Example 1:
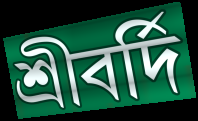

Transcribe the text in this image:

শ্রীবর্দি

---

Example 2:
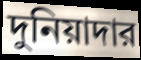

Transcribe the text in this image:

দুনিয়াদার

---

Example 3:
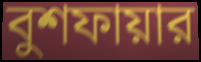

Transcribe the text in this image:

বুশফায়ার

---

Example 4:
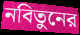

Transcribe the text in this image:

নবিতুনের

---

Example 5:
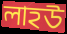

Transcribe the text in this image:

লাহউ